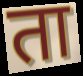
ता